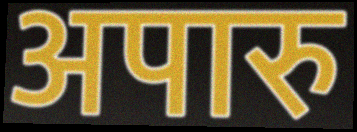
अपारु